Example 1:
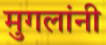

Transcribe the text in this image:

मुगलांनी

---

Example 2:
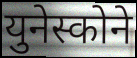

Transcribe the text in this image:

युनेस्कोने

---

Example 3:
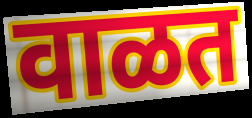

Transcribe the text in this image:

वाळत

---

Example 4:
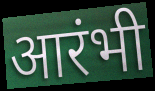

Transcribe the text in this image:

आरंभी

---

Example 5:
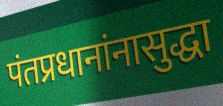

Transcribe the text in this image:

पंतप्रधानांनासुद्धा